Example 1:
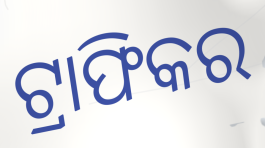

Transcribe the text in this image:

ଟ୍ରାଫିକର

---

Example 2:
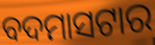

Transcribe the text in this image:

ବଦମାସଟାର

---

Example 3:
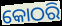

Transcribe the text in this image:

କୋଠରି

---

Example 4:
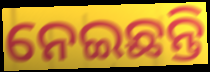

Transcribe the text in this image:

ନେଇଛନ୍ତି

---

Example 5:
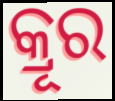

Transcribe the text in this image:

କ୍ରୂର